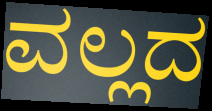
ವಲ್ಲದ